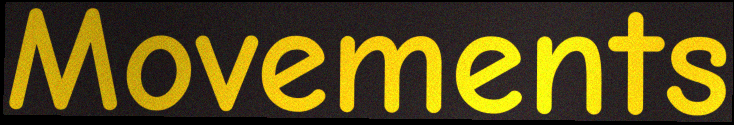
Movements